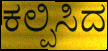
ಕಲ್ಪಿಸಿದ